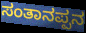
ಸಂತಾನಪ್ಪನ